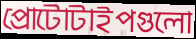
প্রোটোটাইপগুলো